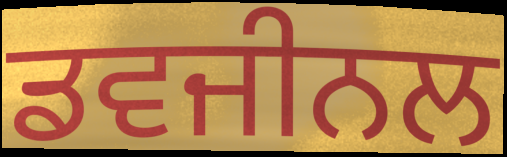
ਡਵਜੀਨਲ